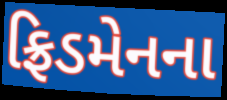
ફ્રિડમેનના